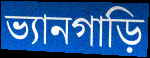
ভ্যানগাড়ি